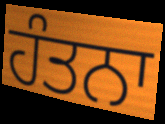
ਹੰਤਨਾ